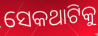
ସେକଥାଟିକୁ